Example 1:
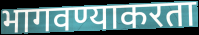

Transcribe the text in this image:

भागवण्याकरता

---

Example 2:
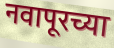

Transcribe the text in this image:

नवापूरच्या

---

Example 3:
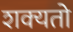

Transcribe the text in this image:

शक्‍यतो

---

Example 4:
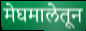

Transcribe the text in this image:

मेघमालेतून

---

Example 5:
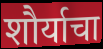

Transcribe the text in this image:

शौर्याचा